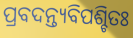
ପ୍ରବଦନ୍ତ୍ୟବିପଶ୍ଚିତଃ